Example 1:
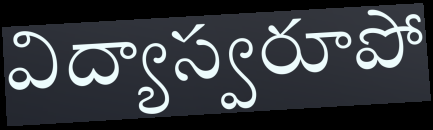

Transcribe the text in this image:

విద్యాస్వరూపో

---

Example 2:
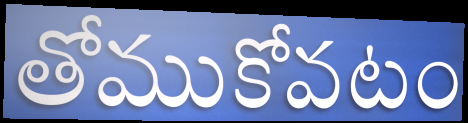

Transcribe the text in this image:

తోముకోవటం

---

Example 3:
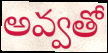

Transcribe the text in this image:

అవ్వతో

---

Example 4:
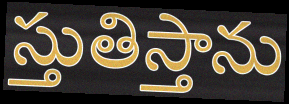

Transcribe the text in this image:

స్తుతిస్తాను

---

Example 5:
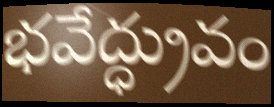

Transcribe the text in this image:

భవేద్ధ్రువం